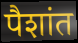
पैशांत